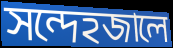
সন্দেহজালে